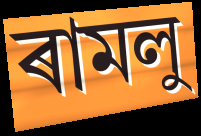
ৰামলু